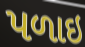
પળાઇ